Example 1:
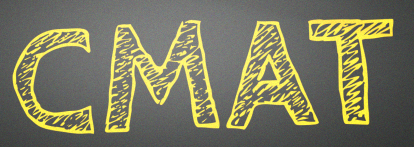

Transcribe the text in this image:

CMAT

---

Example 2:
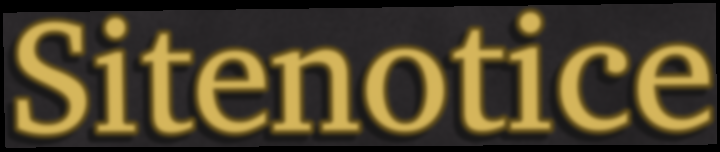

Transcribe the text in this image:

Sitenotice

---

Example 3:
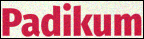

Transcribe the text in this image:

Padikum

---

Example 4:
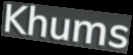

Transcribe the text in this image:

Khums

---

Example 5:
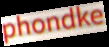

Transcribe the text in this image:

phondke